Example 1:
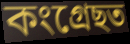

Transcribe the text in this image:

কংগ্ৰেছত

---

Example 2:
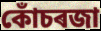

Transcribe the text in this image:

কোঁচৰজা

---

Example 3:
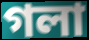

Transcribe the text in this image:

গলা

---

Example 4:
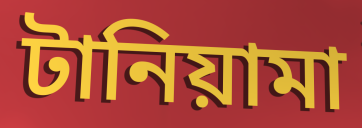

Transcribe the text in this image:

টানিয়ামা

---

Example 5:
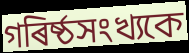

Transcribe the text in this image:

গৰিষ্ঠসংখ্যকে